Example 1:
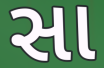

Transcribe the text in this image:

સા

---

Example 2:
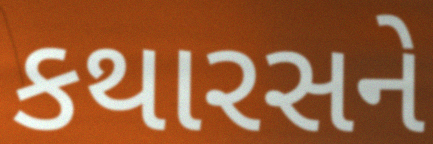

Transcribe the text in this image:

કથારસને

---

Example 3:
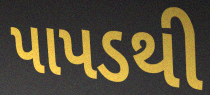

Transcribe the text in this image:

પાપડથી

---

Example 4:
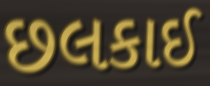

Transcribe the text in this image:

છલકાઈ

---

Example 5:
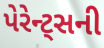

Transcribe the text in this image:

પેરેન્ટ્સની